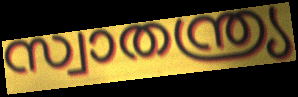
സ്വാതന്ത്ര്യ